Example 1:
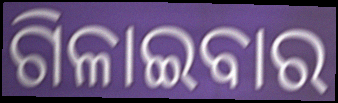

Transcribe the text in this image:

ଗିଳାଇବାର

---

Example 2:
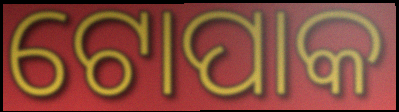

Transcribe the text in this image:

ଟୋପାକ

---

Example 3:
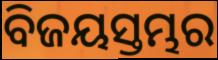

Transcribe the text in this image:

ବିଜୟସ୍ତମ୍ଭର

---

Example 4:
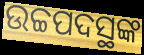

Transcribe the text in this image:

ଉଚ୍ଚପଦସ୍ଥଙ୍କ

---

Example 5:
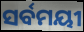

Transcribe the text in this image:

ସର୍ବମୟୀ